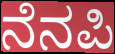
ನೆನಪಿ